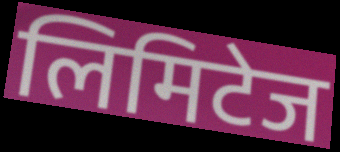
लिमिटेज